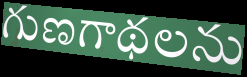
గుణగాథలను